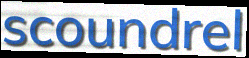
scoundrel